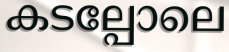
കടല്പോലെ